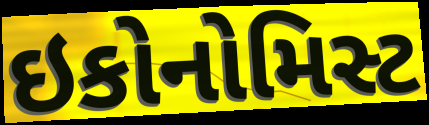
ઇકોનોમિસ્ટ